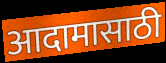
आदामासाठी